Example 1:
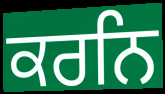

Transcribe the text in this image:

ਕਰਨਿ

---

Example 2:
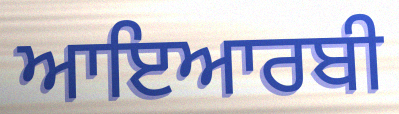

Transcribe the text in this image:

ਆਇਆਰਬੀ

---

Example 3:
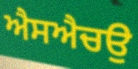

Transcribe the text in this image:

ਐਸਐਚਉ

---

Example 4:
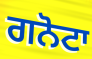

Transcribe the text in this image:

ਗਨੋਟਾ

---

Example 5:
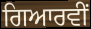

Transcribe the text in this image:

ਗਿਆਰਵੀਂ